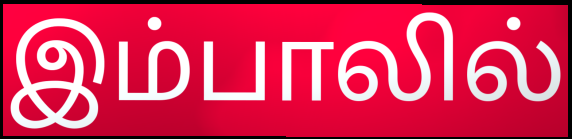
இம்பாலில்